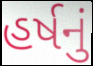
હર્ષનું